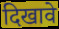
दिखावे